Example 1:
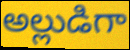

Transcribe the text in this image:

అల్లుడిగా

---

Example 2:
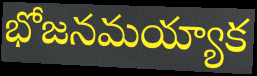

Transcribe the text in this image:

భోజనమయ్యాక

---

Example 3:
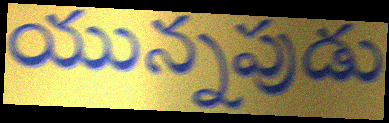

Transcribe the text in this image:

యున్నపుడు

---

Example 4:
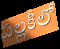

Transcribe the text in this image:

పల్లకీలో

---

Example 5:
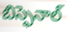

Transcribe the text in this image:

బిస్ఫెనాల్